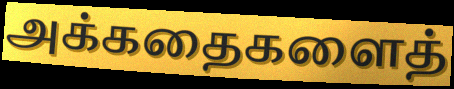
அக்கதைகளைத்